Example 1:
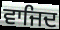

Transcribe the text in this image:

ਵਾਜਿਦ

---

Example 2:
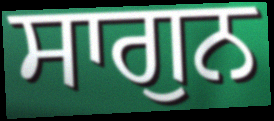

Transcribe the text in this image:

ਸਾਗੁਨ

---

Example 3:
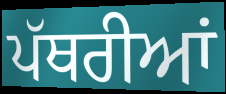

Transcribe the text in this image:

ਪੱਥਰੀਆਂ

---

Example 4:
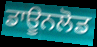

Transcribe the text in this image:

ਡਾਊਨਲੋਡ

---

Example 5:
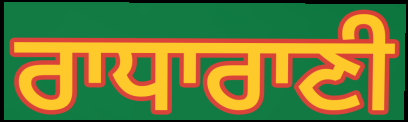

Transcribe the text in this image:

ਰਾਧਾਰਾਣੀ